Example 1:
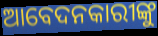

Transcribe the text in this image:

ଆବେଦନକାରୀଙ୍କୁ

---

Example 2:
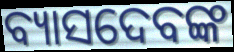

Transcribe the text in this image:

ବ୍ୟାସଦେବଙ୍କ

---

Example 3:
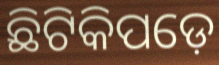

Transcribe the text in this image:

ଛିଟିକିପଡ଼େ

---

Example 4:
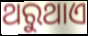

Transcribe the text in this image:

ଥରୁଥାଏ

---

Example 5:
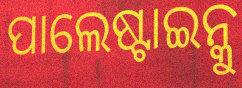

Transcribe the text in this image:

ପାଲେଷ୍ଟାଇନ୍କୁ